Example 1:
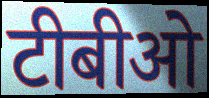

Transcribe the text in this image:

टीबीओ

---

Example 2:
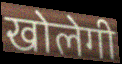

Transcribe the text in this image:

खोलेगी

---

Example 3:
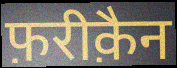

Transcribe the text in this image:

फ़रीक़ैन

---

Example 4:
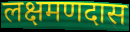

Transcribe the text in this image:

लक्षमणदास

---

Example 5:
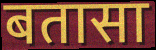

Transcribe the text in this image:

बतासा